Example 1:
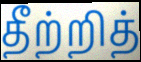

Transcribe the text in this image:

தீற்றித்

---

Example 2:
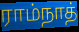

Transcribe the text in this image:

ராம்நாத்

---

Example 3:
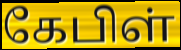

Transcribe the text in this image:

கேபிள்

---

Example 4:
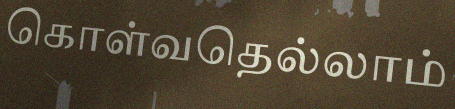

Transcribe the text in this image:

கொள்வதெல்லாம்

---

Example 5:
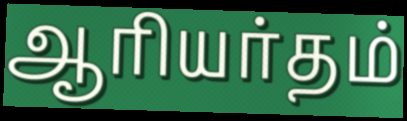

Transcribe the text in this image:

ஆரியர்தம்